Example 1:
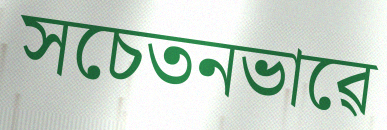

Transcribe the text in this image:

সচেতনভাৱে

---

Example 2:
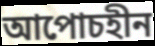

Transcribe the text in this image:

আপোচহীন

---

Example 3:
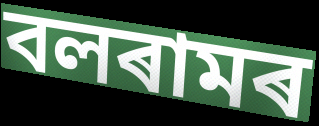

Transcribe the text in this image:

বলৰামৰ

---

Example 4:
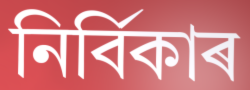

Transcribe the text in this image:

নিৰ্বিকাৰ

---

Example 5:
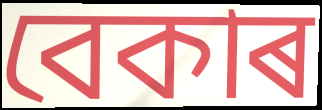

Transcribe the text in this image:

বেকাৰ